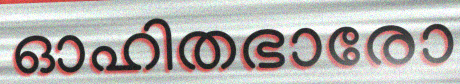
ഓഹിതഭാരോ